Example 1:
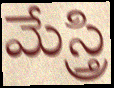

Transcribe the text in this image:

మేస్త్రి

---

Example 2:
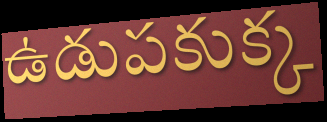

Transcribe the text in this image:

ఉడుపకుక్క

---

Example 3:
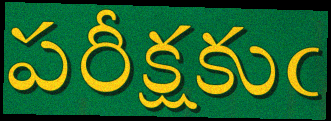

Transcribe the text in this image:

పరీక్షకుఁ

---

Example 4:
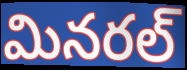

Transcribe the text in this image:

మినరల్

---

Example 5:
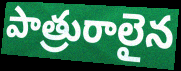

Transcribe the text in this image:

పాత్రురాలైన